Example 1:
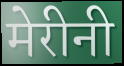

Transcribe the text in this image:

मेरीनी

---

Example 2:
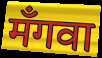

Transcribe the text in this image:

मँगवा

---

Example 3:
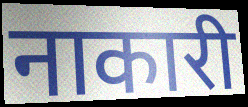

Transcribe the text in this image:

नाकारी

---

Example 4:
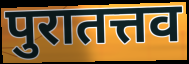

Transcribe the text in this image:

पुरातत्तव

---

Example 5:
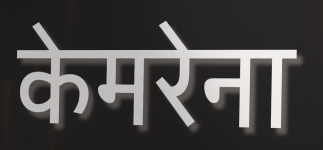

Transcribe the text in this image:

केमरेना